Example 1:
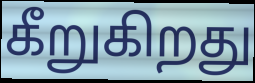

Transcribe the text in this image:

கீறுகிறது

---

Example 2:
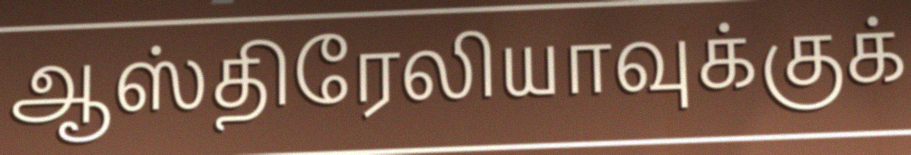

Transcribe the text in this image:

ஆஸ்திரேலியாவுக்குக்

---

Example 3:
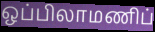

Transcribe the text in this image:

ஒப்பிலாமணிப்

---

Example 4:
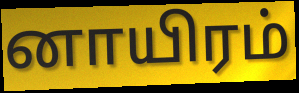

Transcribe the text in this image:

னாயிரம்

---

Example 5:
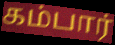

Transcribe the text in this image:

கம்பார்